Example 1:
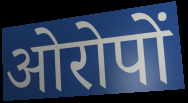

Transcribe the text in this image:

ओरोपों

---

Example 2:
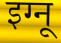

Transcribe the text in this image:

इग्‍नू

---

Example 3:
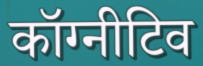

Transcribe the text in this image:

कॉग्नीटिव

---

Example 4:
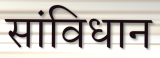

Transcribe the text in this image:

सांविधान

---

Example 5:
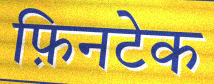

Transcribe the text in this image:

फ़िनटेक